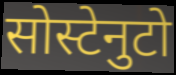
सोस्टेनुटो